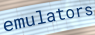
emulators